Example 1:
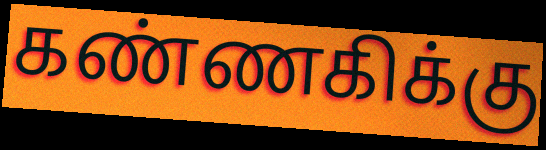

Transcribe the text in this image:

கண்ணகிக்கு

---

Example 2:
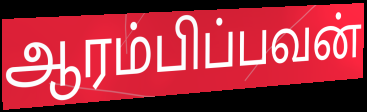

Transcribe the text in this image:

ஆரம்பிப்பவன்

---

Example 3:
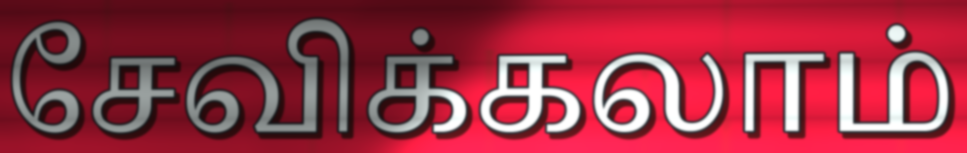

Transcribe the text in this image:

சேவிக்கலாம்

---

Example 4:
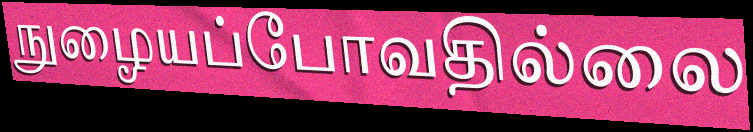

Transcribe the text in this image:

நுழையப்போவதில்லை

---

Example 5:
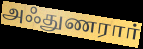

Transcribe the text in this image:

அஃதுணரார்